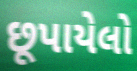
છૂપાયેલો